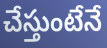
చేస్తుంటేనే